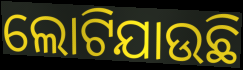
ଲୋଟିଯାଉଛି